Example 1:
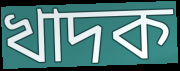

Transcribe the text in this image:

খাদক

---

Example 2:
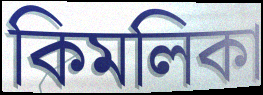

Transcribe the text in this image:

কিমলিকা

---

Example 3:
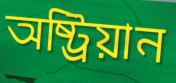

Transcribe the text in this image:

অষ্ট্ৰিয়ান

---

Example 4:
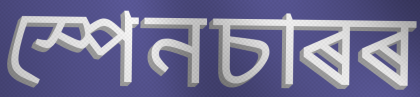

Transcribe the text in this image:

স্পেনচাৰৰ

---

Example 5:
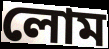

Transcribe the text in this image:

লোম